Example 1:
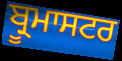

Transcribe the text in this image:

ਬ੍ਰੂਮਾਸਟਰ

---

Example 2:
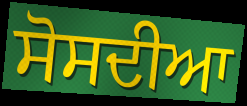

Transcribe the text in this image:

ਸੋਸਦੀਆ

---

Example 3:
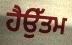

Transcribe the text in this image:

ਹੈਉੱਤਮ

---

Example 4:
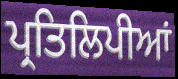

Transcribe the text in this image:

ਪ੍ਰਤਿਲਿਪੀਆਂ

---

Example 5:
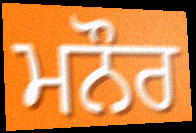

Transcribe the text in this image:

ਮਨੌਰ